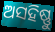
ଅସହିଷ୍ଣୁ